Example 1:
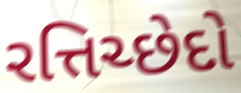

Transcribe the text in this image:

રત્તિચ્છેદો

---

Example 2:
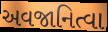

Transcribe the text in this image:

અવજાનિત્વા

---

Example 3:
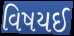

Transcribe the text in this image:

વિષયઈ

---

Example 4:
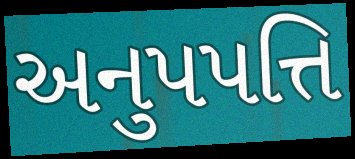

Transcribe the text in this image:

અનુપપત્તિ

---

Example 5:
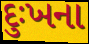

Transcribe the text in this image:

દુઃખના